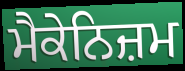
ਮੈਕੇਨਿਜ਼ਮ